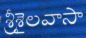
శ్రీశైలవాసా